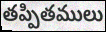
తప్పితములు